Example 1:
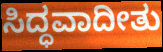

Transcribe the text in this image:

ಸಿದ್ಧವಾದೀತು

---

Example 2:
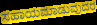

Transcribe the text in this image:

ಸಹಾಯಮಾಡುವುದರ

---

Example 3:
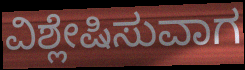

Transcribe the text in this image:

ವಿಶ್ಲೇಷಿಸುವಾಗ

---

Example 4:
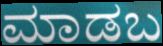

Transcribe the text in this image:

ಮಾಡಬ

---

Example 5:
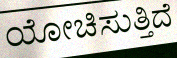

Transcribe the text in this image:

ಯೋಚಿಸುತ್ತಿದೆ